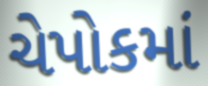
ચેપોકમાં